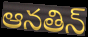
ఆనతిన్